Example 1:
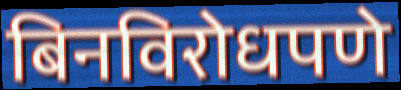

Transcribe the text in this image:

बिनविरोधपणे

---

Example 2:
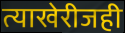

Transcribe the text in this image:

त्याखेरीजही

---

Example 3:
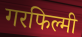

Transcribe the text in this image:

गरफिल्मी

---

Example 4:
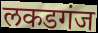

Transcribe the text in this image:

लकडगंज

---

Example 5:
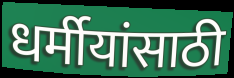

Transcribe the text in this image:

धर्मीयांसाठी